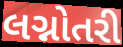
લગ્નોતરી